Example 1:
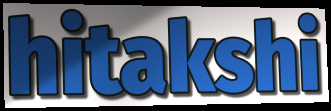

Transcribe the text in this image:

hitakshi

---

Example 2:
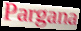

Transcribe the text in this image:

Pargana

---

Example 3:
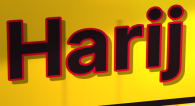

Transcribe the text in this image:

Harij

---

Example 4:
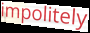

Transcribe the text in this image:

impolitely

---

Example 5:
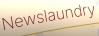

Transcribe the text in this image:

Newslaundry